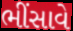
ભીંસાવે